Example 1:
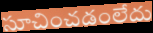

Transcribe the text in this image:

సూచించడంలేదు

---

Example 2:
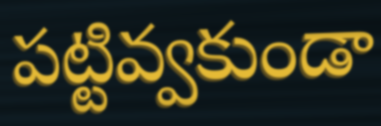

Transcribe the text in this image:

పట్టివ్వకుండా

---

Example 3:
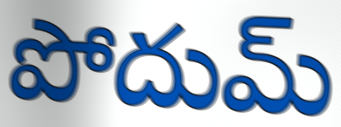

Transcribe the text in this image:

పోదుమ్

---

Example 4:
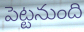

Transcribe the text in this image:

పెట్టనుంది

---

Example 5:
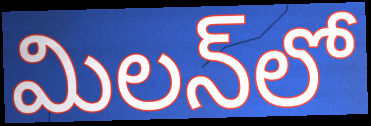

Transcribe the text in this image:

మిలన్‌లో